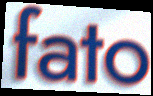
fato